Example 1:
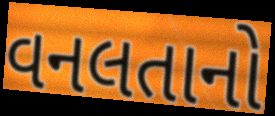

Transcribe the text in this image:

વનલતાનો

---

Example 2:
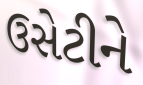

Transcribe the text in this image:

ઉસેટીને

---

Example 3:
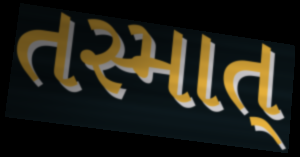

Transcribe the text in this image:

તસ્માત્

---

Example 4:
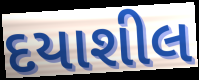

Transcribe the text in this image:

દયાશીલ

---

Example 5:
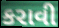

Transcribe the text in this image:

કરાવી